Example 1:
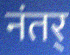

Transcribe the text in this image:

नंतर्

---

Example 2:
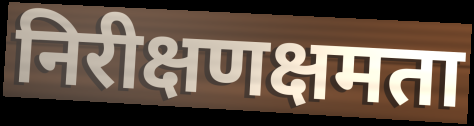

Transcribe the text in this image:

निरीक्षणक्षमता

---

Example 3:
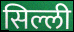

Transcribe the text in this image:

सिल्ली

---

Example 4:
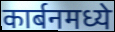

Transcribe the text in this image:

कार्बनमध्ये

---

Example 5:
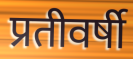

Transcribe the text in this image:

प्रतीवर्षी